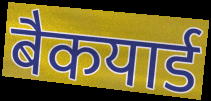
बैकयार्ड